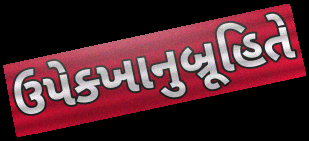
ઉપેક્ખાનુબ્રૂહિતે